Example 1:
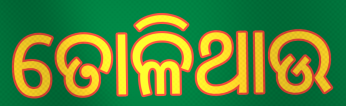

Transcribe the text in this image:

ତୋଳିଥାଉ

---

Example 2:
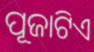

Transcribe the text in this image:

ପୂଜାଟିଏ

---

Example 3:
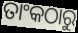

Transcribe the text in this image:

ତାଂକଠାରୁ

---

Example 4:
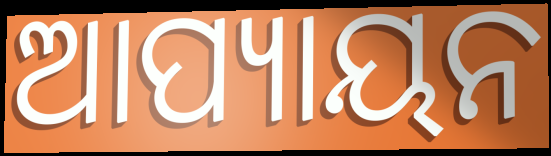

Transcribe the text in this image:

ଆପ୍ୟାୟନ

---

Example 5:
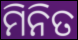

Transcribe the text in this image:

ମିନିତ